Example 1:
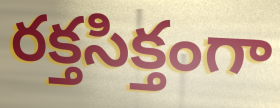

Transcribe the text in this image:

రక్తసిక్తంగా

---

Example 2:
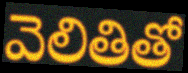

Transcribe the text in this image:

వెలితితో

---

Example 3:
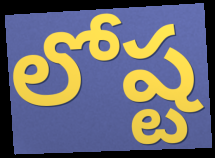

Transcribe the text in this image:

లోష్ట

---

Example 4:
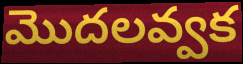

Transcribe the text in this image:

మొదలవ్వక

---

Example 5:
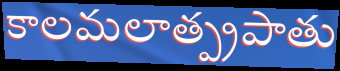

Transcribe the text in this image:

కాలమలాత్ప్రపాతు